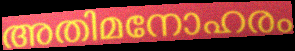
അതിമനോഹരം